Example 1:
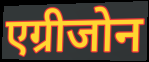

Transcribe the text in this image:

एग्रीजोन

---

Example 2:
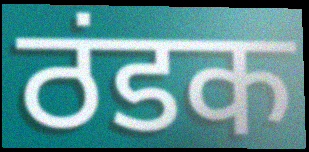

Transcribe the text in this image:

ठंडक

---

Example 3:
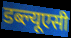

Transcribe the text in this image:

डब्ल्यूएसी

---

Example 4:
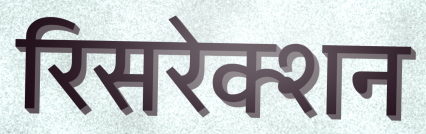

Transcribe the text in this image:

रिसरेक्शन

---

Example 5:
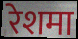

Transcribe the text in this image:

रेशमा